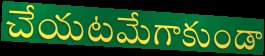
చేయటమేగాకుండా